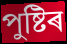
পুষ্টিৰ